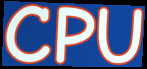
CPU